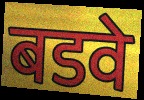
बडवे